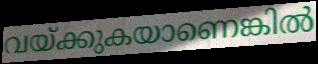
വയ്ക്കുകയാണെങ്കിൽ